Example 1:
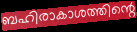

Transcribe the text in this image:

ബഹിരാകാശത്തിന്റെ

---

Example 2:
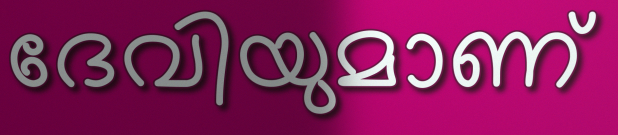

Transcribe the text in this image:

ദേവിയുമാണ്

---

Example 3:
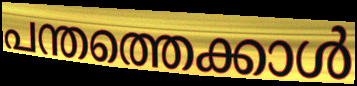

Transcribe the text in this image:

പന്തത്തെക്കാൾ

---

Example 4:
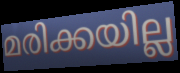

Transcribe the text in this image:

മരിക്കയില്ല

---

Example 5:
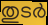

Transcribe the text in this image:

തുടർ